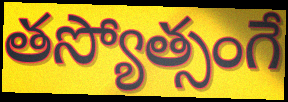
తస్యోత్సంగే